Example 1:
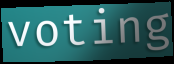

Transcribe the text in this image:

voting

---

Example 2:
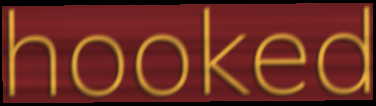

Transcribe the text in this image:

hooked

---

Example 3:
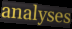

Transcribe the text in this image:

analyses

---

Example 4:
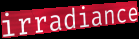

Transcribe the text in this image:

irradiance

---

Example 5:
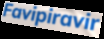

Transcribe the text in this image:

Favipiravir